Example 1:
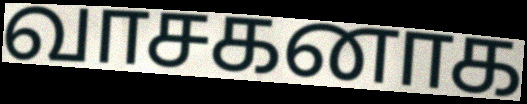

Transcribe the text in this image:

வாசகனாக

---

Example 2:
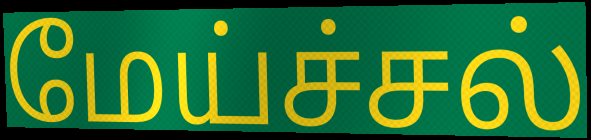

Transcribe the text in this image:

மேய்ச்சல்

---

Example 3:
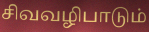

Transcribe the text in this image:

சிவவழிபாடும்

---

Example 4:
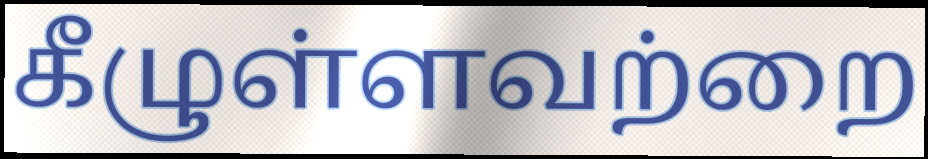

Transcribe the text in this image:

கீழுள்ளவற்றை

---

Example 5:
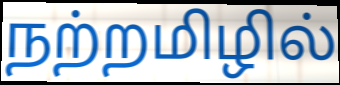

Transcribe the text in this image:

நற்றமிழில்